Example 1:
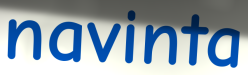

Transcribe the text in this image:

navinta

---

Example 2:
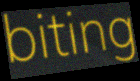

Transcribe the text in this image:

biting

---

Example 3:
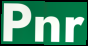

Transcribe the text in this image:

Pnr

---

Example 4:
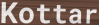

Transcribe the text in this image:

Kottar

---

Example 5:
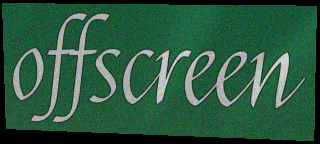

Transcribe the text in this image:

offscreen